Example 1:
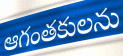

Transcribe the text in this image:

ఆగంతకులను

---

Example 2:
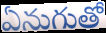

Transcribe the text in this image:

ఏనుగుతో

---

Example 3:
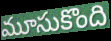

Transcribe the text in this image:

మూసుకొంది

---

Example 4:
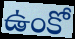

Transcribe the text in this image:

ఉంకో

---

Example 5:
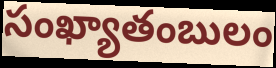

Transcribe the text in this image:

సంఖ్యాతంబులం